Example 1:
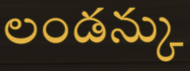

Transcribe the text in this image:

లండన్కు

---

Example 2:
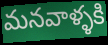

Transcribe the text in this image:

మనవాళ్ళకి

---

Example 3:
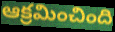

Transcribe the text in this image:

ఆక్రమించింది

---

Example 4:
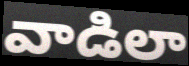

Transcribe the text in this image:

వాడిలా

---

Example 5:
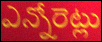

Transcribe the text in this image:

ఎన్నోరెట్లు